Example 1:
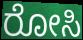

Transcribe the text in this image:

ರೋಸಿ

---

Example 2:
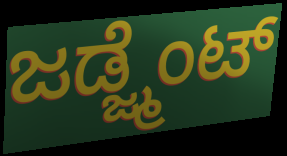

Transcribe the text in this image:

ಜಡ್ಜ್ಮೆಂಟ್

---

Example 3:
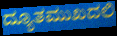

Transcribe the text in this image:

ದ್ಯೂತಮುಖದಲಿ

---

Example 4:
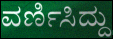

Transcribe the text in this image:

ವರ್ಣಿಸಿದ್ದು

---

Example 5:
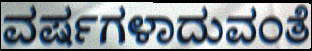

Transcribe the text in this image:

ವರ್ಷಗಳಾದುವಂತೆ